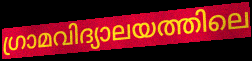
ഗ്രാമവിദ്യാലയത്തിലെ